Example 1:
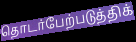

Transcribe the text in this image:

தொடர்பேற்படுத்திக்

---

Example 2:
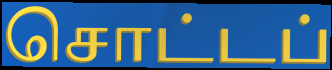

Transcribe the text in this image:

சொட்டப்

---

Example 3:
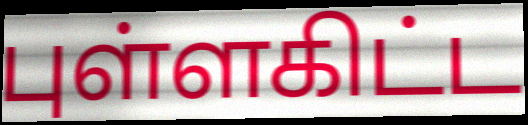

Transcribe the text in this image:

புள்ளகிட்ட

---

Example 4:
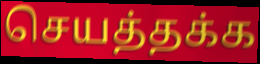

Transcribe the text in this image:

செயத்தக்க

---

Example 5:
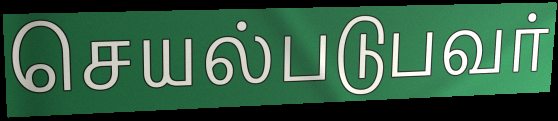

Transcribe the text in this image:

செயல்படுபவர்